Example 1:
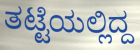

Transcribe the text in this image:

ತಟ್ಟೆಯಲ್ಲಿದ್ದ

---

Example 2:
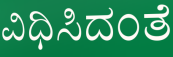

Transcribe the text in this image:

ವಿಧಿಸಿದಂತೆ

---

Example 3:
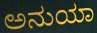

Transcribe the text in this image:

ಅನುಯಾ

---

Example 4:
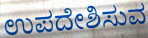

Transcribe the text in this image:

ಉಪದೇಶಿಸುವ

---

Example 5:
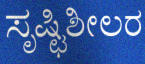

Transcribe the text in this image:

ಸೃಷ್ಟಿಶೀಲರ